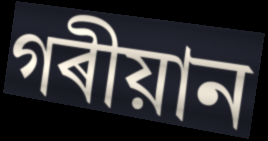
গৰীয়ান